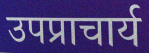
उपप्राचार्य